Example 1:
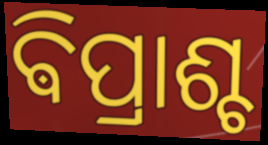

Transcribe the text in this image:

ଵିପ୍ରାଶ୍ଚ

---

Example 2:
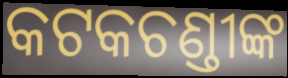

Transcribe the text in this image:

କଟକଚଣ୍ଡୀଙ୍କ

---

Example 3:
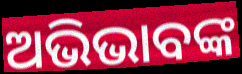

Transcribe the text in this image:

ଅଭିଭାବଙ୍କ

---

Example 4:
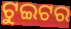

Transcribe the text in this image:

ଟୁଇଟର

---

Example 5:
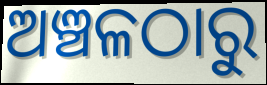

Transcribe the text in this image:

ଅଞ୍ଚଳଠାରୁ